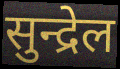
सुन्द्रेल